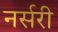
नर्सरी